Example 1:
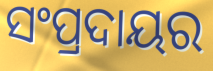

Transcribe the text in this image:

ସଂପ୍ରଦାୟର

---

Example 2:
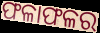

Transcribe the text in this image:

ଫଳାଫଳର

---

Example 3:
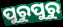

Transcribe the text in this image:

ପୁରୁପୁରୁ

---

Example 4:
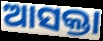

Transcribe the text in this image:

ଆସକ୍ତା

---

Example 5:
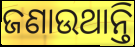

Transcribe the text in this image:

ଜଣାଉଥାନ୍ତି